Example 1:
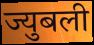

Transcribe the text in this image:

ज्युबली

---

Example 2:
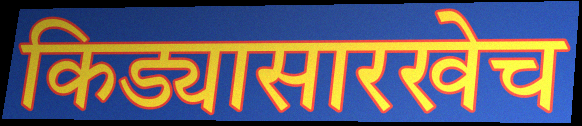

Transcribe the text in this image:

किड्यासारखेच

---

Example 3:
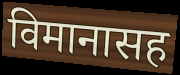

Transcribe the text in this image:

विमानासह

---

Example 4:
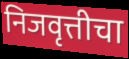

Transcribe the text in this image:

निजवृत्तीचा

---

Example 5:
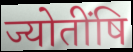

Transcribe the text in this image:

ज्योतींषि